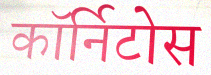
कॉर्निटोस